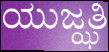
ಯುಜ್ಝತಿ